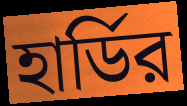
হার্ডির